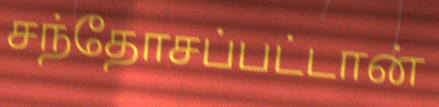
சந்தோசப்பட்டான்